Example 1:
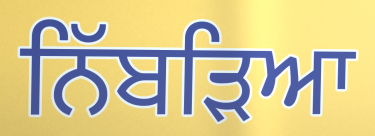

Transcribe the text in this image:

ਨਿੱਬੜਿਆ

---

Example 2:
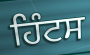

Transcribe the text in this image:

ਹਿੰਟਸ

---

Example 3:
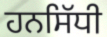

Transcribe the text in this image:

ਹਨਸਿੱਧੀ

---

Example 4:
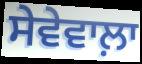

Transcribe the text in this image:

ਸੇਵੇਵਾਲ਼ਾ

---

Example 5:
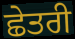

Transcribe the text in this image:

ਛੇਤਰੀ